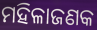
ମହିଳାଜଣକ